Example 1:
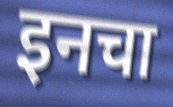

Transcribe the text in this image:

इनचा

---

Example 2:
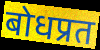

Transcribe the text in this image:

बोधप्रत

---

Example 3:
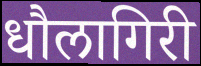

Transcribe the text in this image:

धौलागिरी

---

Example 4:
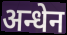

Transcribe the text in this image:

अन्धेन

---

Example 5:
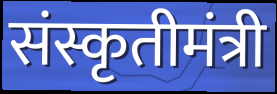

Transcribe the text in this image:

संस्कृतीमंत्री